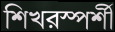
শিখরস্পর্শী